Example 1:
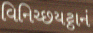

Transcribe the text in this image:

વિનિચ્છયટ્ઠાનં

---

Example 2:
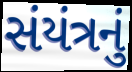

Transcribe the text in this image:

સંયંત્રનું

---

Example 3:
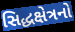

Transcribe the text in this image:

સિદ્ધક્ષેત્રનો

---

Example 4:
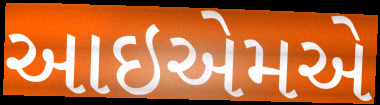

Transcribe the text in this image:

આઇએમએ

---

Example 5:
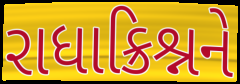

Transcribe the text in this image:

રાધાક્રિશ્નને